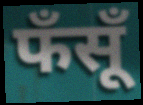
फँसूँ